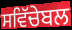
ਸਵਿੱਚੇਬਲ